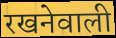
रखनेवाली